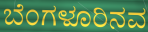
ಬೆಂಗಳೂರಿನವ